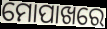
ମୋପାଖରେ